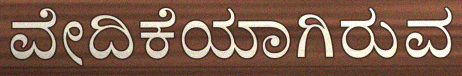
ವೇದಿಕೆಯಾಗಿರುವ